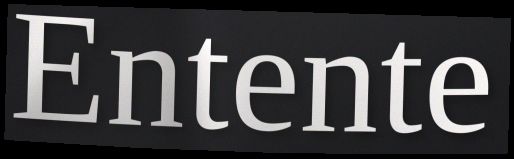
Entente